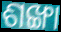
ଶଙ୍ଖା